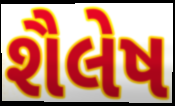
શૈલેષ